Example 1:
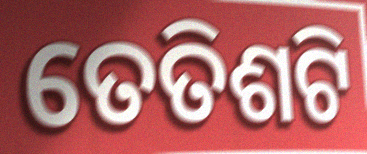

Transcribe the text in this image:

ତେତିଶଟି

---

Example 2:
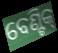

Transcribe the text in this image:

ବେଣ୍ଟିକ୍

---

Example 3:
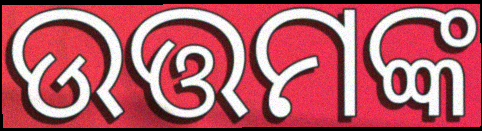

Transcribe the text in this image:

ଉତ୍ତମଙ୍କ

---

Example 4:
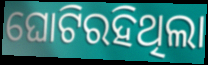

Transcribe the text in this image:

ଘୋଟିରହିଥିଲା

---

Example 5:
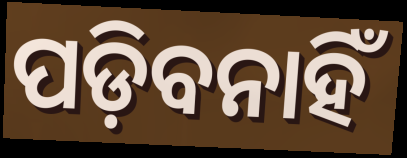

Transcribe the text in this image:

ପଡ଼ିବନାହିଁ